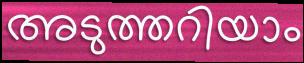
അടുത്തറിയാം